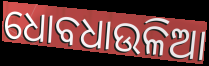
ଧୋବଧାଉଳିଆ